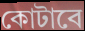
কোটাবে